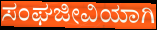
ಸಂಘಜೀವಿಯಾಗಿ